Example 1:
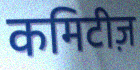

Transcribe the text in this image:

कमिटीज़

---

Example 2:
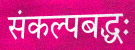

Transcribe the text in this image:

संकल्पबद्धः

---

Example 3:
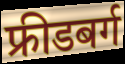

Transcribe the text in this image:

फ्रीडबर्ग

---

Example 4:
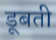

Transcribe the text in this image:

डूबती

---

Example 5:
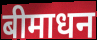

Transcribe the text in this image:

बीमाधन